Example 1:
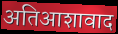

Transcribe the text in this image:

अतिआशावाद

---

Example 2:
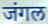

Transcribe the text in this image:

जंगल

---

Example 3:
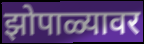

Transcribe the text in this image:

झोपाळ्यावर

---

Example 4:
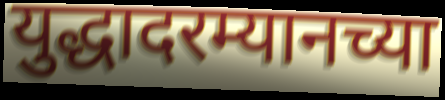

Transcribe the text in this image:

युद्धादरम्यानच्या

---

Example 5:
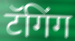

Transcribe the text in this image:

टॅगिंग